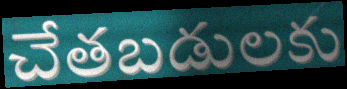
చేతబడులకు